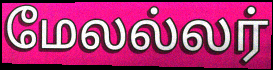
மேலல்லர்